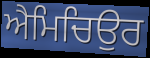
ਐਮਿਚਿਉਰ